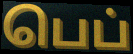
பெப்